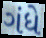
ગંધે